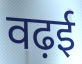
वढ़ई